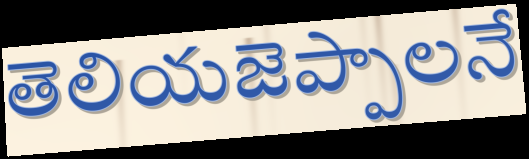
తెలియజెప్పాలనే